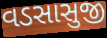
વડસાસુજી